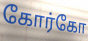
கோர்கோ